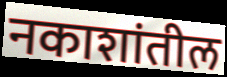
नकाशांतील